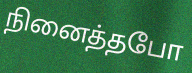
நினைத்தபோ